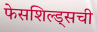
फेसशिल्ड्सची